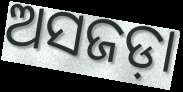
ଅସଜଡ଼ା